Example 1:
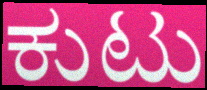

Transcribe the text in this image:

ಕುಟು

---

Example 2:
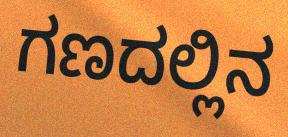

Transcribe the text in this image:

ಗಣದಲ್ಲಿನ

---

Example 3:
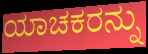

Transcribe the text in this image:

ಯಾಚಕರನ್ನು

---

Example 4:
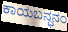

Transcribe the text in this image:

ಕಾಯಬನ್ಧನಂ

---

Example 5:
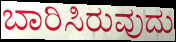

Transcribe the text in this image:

ಬಾರಿಸಿರುವುದು